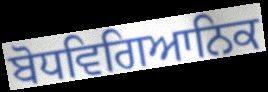
ਬੋਧਵਿਗਿਆਨਿਕ